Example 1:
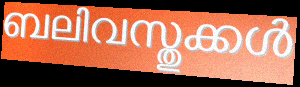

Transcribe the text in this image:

ബലിവസ്തുക്കൾ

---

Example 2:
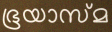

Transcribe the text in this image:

ഭൂയാസ്മ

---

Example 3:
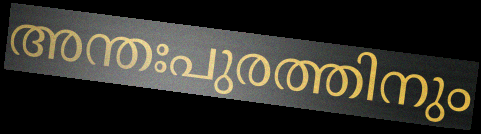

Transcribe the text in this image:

അന്തഃപുരത്തിനും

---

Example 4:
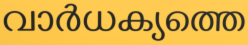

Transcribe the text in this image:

വാർധക്യത്തെ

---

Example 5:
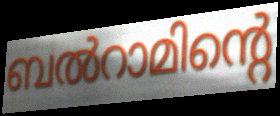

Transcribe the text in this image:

ബൽറാമിന്റെ